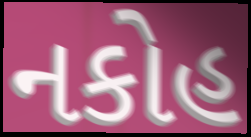
નકોહ